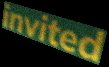
invited